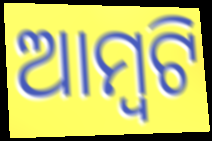
ଆମ୍ୱଟି